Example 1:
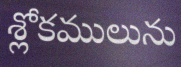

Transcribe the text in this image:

శ్లోకములును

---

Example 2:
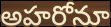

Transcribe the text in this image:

అహరోనూ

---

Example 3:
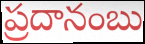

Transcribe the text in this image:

ప్రదానంబు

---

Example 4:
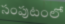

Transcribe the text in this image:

సంపుటంలో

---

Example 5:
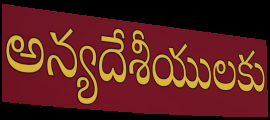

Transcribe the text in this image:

అన్యదేశీయులకు